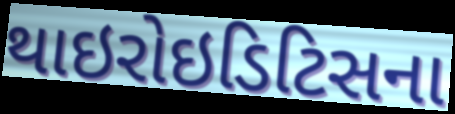
થાઇરોઇડિટિસના